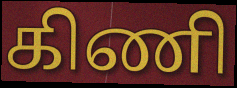
கிணி